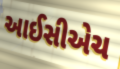
આઈસીએચ